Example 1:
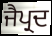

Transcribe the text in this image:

ਜੈਪ੍ਰਦ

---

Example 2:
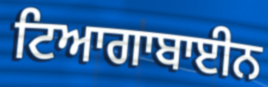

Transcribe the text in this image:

ਟਿਆਗਾਬਾਈਨ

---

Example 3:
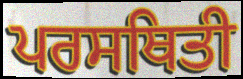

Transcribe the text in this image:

ਪਰਸਥਿਤੀ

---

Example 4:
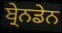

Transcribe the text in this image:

ਬ੍ਰੇਨਡੇਨ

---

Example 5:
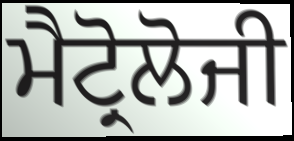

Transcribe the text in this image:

ਮੈਟ੍ਰੋਲੋਜੀ